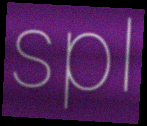
spl